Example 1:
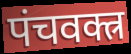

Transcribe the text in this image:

पंचवक्त्र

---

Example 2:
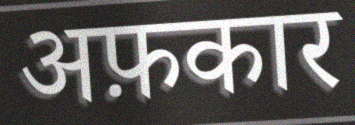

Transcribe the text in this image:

अफ़कार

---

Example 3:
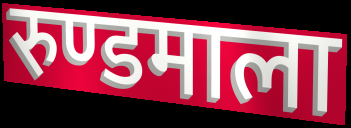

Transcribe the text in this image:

रुण्डमाला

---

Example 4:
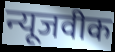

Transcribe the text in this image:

न्यूजवीक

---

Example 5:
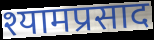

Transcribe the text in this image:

श्यामप्रसाद